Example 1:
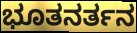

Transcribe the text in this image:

ಭೂತನರ್ತನ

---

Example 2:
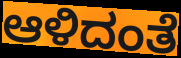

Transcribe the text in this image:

ಆಳಿದಂತೆ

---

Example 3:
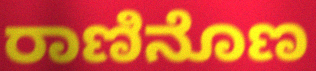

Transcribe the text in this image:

ರಾಣಿನೊಣ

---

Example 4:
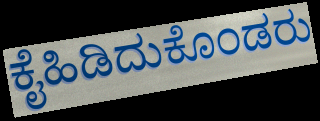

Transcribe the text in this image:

ಕೈಹಿಡಿದುಕೊಂಡರು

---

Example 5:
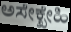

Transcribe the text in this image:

ಅಸೇಕ್ಖೇಹಿ